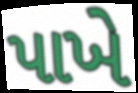
પાખે